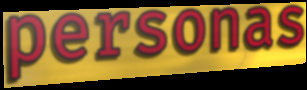
personas